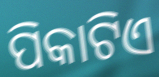
ପିକାଟିଏ